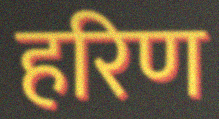
हरिण